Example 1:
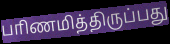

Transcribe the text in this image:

பரிணமித்திருப்பது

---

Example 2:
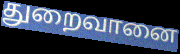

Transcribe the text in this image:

துறைவானை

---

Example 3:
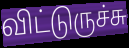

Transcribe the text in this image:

விட்டுருச்சு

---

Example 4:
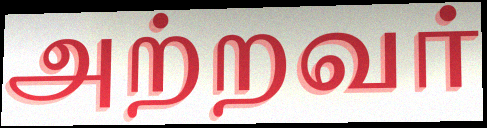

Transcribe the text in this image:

அற்றவர்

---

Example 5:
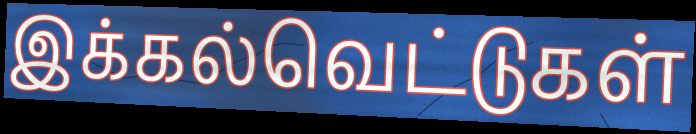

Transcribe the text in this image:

இக்கல்வெட்டுகள்